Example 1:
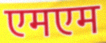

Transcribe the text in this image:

एमएम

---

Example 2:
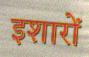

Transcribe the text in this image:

इशारों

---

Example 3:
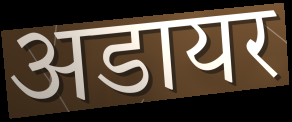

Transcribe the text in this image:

अडायर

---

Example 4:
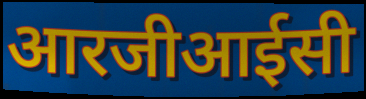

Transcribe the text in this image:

आरजीआईसी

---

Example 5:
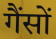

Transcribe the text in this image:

गैंसों